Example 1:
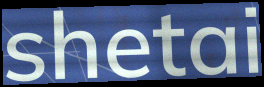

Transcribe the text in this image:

shetai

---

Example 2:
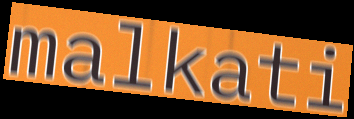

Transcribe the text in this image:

malkati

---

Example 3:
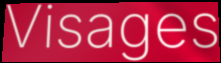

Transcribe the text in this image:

Visages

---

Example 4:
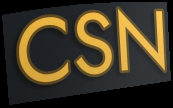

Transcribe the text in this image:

CSN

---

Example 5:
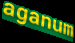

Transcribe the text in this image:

aganum